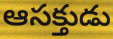
ఆసక్తుడు